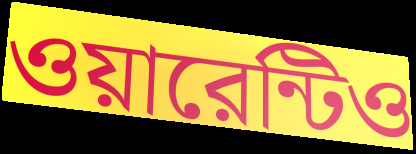
ওয়ারেন্টিও